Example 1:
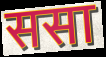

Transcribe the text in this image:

ससा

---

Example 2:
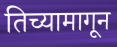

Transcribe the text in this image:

तिच्यामागून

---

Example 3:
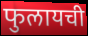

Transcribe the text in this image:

फुलायची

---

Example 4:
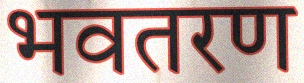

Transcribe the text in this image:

भवतरण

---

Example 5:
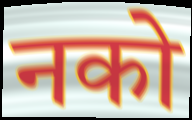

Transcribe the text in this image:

नको